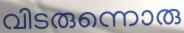
വിടരുന്നൊരു